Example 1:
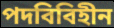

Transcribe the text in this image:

পদবিবিহীন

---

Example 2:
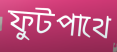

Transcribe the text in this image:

ফুটপাথে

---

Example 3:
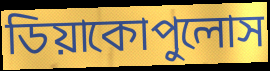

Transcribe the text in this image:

ডিয়াকোপুলোস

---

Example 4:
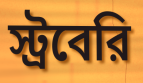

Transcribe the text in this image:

স্ট্রবেরি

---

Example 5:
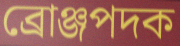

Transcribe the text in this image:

ব্রোঞ্জপদক